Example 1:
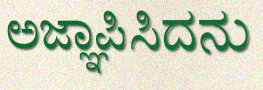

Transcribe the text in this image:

ಅಜ್ಞಾಪಿಸಿದನು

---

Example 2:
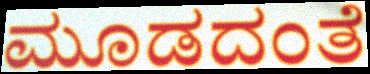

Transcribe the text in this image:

ಮೂಡದಂತೆ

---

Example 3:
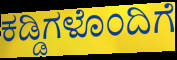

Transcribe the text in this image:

ಕಡ್ಡಿಗಳೊಂದಿಗೆ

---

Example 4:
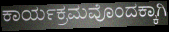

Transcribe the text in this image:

ಕಾರ್ಯಕ್ರಮವೊಂದಕ್ಕಾಗಿ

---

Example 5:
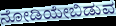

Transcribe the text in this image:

ನೋಡಿಯೇಬಿಡುವ